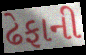
ઢેફાની